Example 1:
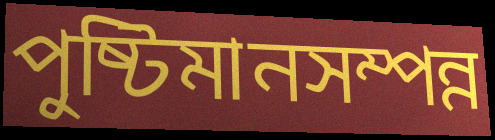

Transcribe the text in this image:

পুষ্টিমানসম্পন্ন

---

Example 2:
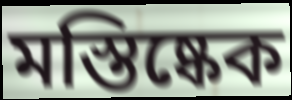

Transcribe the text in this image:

মস্তিষ্কেক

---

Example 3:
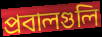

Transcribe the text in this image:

প্রবালগুলি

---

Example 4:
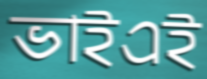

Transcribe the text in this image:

ভাইএই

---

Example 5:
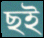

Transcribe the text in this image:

ছই